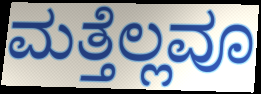
ಮತ್ತೆಲ್ಲವೂ